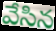
వేసిన